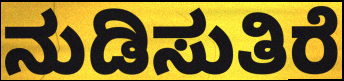
ನುಡಿಸುತಿರೆ